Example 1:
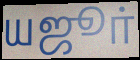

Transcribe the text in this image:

யஜூர்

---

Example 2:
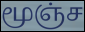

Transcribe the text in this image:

மூஞ்ச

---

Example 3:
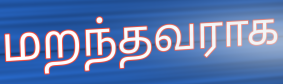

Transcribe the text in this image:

மறந்தவராக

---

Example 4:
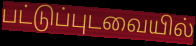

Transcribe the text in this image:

பட்டுப்புடவையில்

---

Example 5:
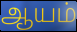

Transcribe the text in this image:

ஆயம்